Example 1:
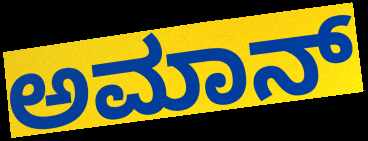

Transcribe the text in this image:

ಅಮಾನ್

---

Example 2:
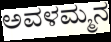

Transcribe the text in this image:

ಅವಳಮ್ಮನ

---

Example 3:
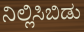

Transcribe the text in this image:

ನಿಲ್ಲಿಸಿಬಿಡು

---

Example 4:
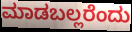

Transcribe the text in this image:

ಮಾಡಬಲ್ಲರೆಂದು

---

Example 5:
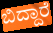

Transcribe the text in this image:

ಬಿದ್ದಾರೆ